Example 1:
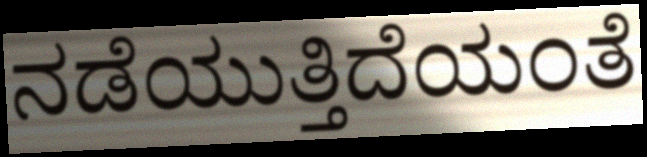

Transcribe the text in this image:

ನಡೆಯುತ್ತಿದೆಯಂತೆ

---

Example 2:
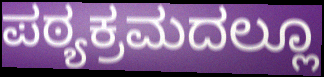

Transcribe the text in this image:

ಪಠ್ಯಕ್ರಮದಲ್ಲೂ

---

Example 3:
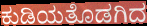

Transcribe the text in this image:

ಕುಡಿಯತೊಡಗಿದ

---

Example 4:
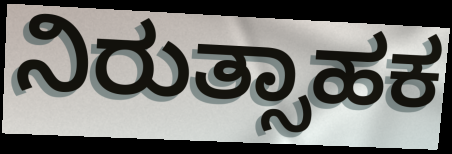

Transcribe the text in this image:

ನಿರುತ್ಸಾಹಕ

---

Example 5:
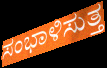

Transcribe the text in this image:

ಸಂಭಾಳಿಸುತ್ತ